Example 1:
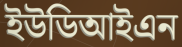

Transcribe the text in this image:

ইউডিআইএন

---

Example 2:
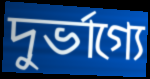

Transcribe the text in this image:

দুর্ভাগ্যে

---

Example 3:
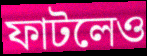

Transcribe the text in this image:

ফাটলেও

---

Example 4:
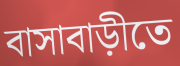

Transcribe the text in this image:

বাসাবাড়ীতে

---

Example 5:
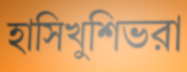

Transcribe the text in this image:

হাসিখুশিভরা